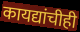
कायद्यांचीही